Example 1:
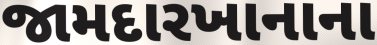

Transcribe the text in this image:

જામદારખાનાના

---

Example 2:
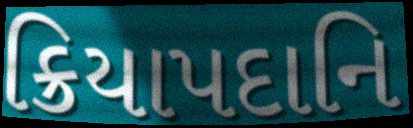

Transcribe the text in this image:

ક્રિયાપદાનિ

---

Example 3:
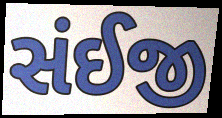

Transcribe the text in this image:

સંઈજી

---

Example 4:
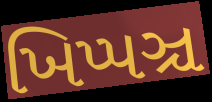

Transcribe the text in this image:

ખિપ્પઞ્ચ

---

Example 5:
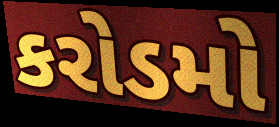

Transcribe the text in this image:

કરોડમો